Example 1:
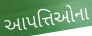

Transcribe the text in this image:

આપત્તિઓના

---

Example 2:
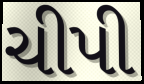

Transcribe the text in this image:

ચીપી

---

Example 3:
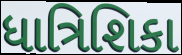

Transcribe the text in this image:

ધાત્રિશિકા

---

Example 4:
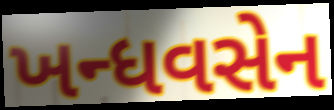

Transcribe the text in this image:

ખન્ધવસેન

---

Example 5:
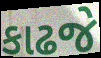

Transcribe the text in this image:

કાઢજે